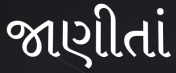
જાણીતાં